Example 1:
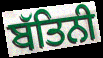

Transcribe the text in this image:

ਬੱਤਿਨੀ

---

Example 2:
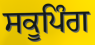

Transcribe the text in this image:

ਸਕੂਪਿੰਗ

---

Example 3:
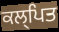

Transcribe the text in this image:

ਕਲ੍ਪਿਤ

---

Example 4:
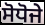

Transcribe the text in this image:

ਸੋਧੋਜੇ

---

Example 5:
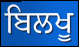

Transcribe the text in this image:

ਬਿਲਖੂ